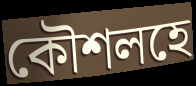
কৌশলহে